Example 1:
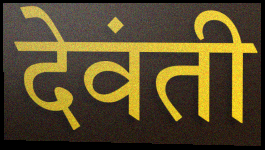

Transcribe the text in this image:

देवंती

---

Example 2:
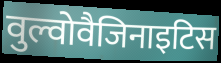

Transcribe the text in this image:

वुल्वोवैजिनाइटिस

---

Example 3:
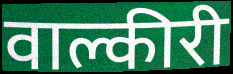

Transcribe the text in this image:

वाल्कीरी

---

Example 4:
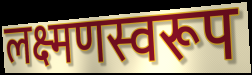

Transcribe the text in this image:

लक्ष्मणस्वरूप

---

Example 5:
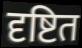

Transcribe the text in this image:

दृष्टित